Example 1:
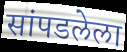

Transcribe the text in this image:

सांपडलेला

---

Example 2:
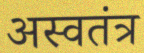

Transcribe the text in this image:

अस्वतंत्र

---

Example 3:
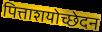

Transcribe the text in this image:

पित्ताशयोच्छेदन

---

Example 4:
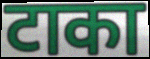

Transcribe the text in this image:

टाका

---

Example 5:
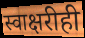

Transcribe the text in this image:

स्वाक्षरीही